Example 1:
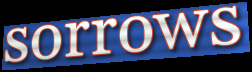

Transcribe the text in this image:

sorrows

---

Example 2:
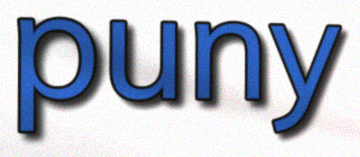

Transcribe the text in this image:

puny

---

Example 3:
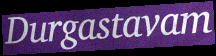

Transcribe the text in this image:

Durgastavam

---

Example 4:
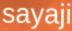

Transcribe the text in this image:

sayaji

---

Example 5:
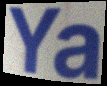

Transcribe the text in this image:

Ya